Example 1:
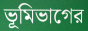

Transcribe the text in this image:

ভূমিভাগের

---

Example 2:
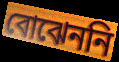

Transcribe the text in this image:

বোঝেননি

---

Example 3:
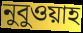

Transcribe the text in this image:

নুবুওয়াহ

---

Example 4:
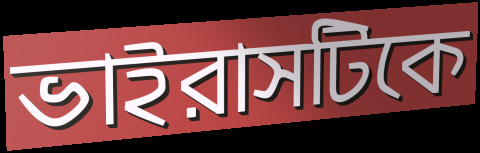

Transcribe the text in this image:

ভাইরাসটিকে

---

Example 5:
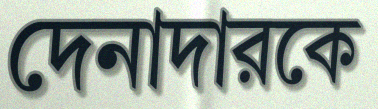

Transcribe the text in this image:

দেনাদারকে